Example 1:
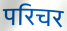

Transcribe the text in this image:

परिचर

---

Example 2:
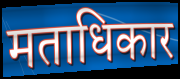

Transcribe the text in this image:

मताधिकार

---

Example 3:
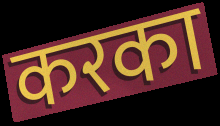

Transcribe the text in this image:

करका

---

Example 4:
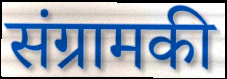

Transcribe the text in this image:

संग्रामकी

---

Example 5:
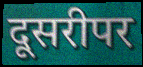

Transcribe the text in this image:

दूसरीपर